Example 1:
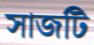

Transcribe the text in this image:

সাজটি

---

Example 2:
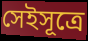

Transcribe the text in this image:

সেইসূত্রে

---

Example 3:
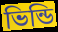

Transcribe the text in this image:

ভিন্ডি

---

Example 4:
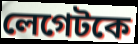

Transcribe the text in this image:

লেগেটকে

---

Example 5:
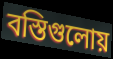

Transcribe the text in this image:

বস্তিগুলোয়